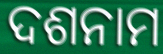
ଦଶନାମ